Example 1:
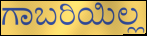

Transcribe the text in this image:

ಗಾಬರಿಯಿಲ್ಲ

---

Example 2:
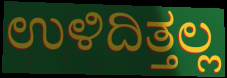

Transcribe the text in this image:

ಉಳಿದಿತ್ತಲ್ಲ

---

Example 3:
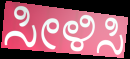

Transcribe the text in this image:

ಸೀಳಿಸಿ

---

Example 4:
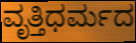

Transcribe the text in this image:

ವೃತ್ತಿಧರ್ಮದ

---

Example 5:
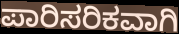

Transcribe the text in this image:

ಪಾರಿಸರಿಕವಾಗಿ